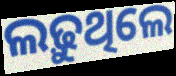
ଲଢ଼ୁଥିଲେ